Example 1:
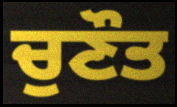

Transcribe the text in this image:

ਚੁਣੌਤ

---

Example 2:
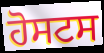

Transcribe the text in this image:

ਹੋਸਟਸ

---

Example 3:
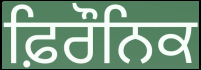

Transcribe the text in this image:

ਫ਼ਿਰੌਨਿਕ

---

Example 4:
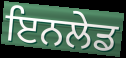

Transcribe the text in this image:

ਇਨਲੇਡ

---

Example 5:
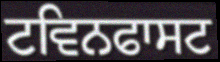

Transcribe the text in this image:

ਟਵਿਨਫਾਸਟ